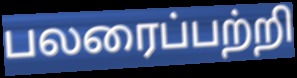
பலரைப்பற்றி